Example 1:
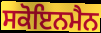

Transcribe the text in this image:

ਸਕੋਇਨਮੈਨ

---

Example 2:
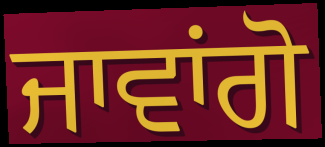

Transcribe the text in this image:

ਜਾਵਾਂਗੋ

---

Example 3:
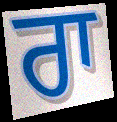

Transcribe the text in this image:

ਰਾ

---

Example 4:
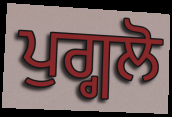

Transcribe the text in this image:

ਪੁਗ੍ਗਲੋ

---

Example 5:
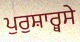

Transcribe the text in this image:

ਪੁਰੁਸ਼ਾਰ੍ਥਸੇ